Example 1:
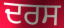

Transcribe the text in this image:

ਦਰਸ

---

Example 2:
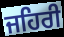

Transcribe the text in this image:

ਜਹਿਰੀ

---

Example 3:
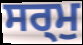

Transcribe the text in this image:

ਸਰ੍ਮੁ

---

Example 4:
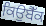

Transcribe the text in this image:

ਕਿਉਬੈੱਕ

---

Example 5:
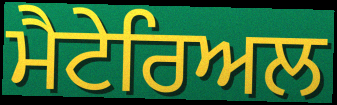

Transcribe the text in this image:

ਮੈਟੇਰਿਅਲ